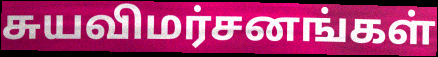
சுயவிமர்சனங்கள்